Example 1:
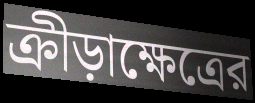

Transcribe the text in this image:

ক্রীড়াক্ষেত্রের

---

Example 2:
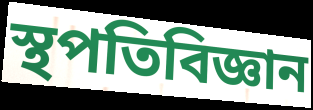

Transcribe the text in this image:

স্থপতিবিজ্ঞান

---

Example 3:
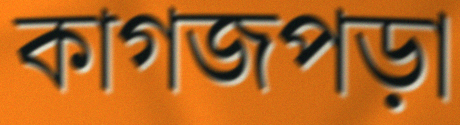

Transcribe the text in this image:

কাগজপড়া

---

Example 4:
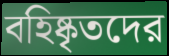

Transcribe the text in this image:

বহিষ্কৃতদের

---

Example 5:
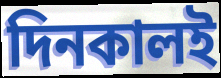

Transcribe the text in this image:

দিনকালই